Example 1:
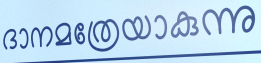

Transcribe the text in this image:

ദാനമത്രേയാകുന്നു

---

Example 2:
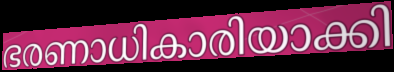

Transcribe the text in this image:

ഭരണാധികാരിയാക്കി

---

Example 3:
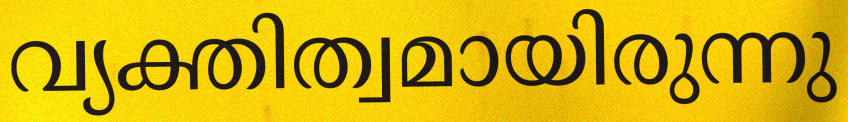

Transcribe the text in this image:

വ്യക്തിത്വമായിരുന്നു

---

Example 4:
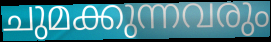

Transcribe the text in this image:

ചുമക്കുന്നവരും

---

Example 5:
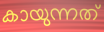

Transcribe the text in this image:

കായുന്നത്